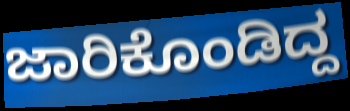
ಜಾರಿಕೊಂಡಿದ್ದ